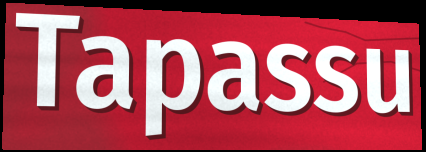
Tapassu